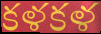
కళకళ